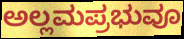
ಅಲ್ಲಮಪ್ರಭುವೂ